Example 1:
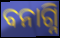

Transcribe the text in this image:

ବନାଗ୍ନି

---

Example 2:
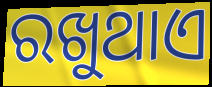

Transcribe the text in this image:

ରଖୁଥାଏ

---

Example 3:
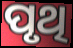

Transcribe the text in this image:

ପୃଥି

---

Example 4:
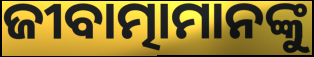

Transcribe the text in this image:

ଜୀବାତ୍ମାମାନଙ୍କୁ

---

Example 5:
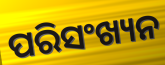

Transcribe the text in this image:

ପରିସଂଖ୍ୟନ